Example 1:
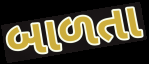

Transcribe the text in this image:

બાળતા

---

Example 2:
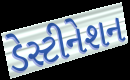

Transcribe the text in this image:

ડેસ્ટીનેશન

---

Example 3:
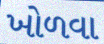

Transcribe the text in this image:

ખોળવા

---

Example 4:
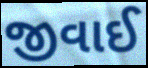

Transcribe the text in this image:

જીવાઈ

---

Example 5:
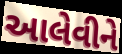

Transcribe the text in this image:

આલેવીને